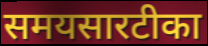
समयसारटीका